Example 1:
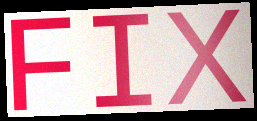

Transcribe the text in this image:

FIX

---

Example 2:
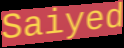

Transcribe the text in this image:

Saiyed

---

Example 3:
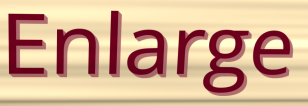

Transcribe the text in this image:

Enlarge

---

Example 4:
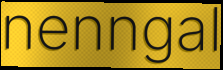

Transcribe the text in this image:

nenngal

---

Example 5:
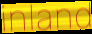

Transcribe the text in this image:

inland